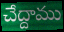
చేద్దాము